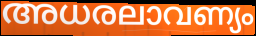
അധരലാവണ്യം